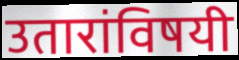
उतारांविषयी